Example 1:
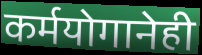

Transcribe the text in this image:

कर्मयोगानेही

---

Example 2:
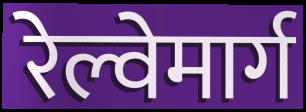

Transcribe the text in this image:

रेल्वेमार्ग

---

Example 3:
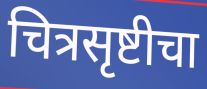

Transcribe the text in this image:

चित्रसृष्टीचा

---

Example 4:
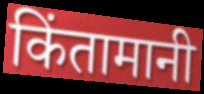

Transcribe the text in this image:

किंतामानी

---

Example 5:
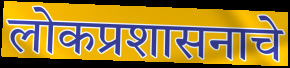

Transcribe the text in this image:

लोकप्रशासनाचे